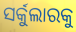
ସର୍କୁଲାରକୁ